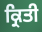
ਕ੍ਰਿਤੀ